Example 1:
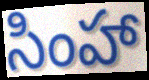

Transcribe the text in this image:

సింహా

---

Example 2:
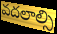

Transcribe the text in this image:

వదలాల్సి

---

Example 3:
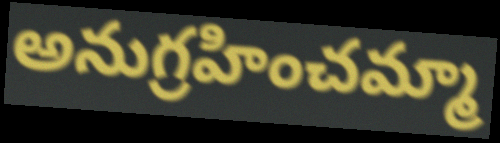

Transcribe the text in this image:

అనుగ్రహించమ్మా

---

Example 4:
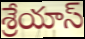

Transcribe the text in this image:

శ్రేయాస్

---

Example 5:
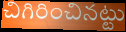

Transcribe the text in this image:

చిగిరించినట్టు